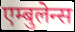
एम्बुलेन्स